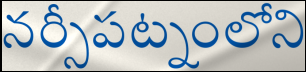
నర్సీపట్నంలోని